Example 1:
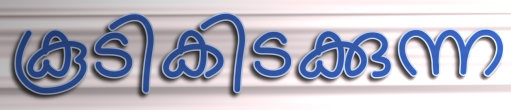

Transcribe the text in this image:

കൂടികിടക്കുന്ന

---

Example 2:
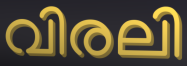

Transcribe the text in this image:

വിരലി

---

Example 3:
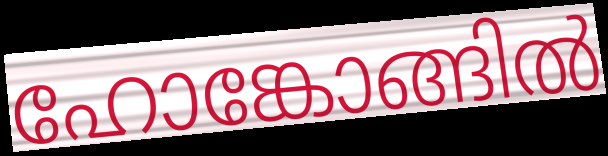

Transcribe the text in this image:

ഹോങ്കോങ്ങിൽ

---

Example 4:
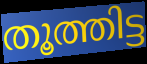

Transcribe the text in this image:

തൂത്തിട്ട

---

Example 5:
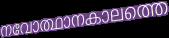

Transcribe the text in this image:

നവോത്ഥാനകാലത്തെ